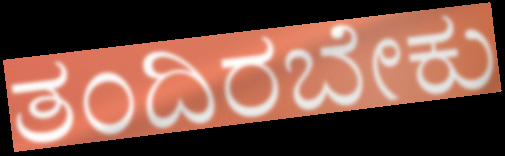
ತಂದಿರಬೇಕು